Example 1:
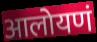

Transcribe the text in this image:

आलोयणं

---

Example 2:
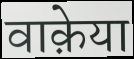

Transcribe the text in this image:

वाक़ेया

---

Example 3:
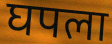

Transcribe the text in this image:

घपला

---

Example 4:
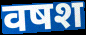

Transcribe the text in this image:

वषश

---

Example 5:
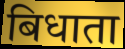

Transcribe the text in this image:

बिधाता